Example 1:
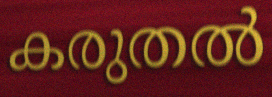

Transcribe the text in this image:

കരുതൽ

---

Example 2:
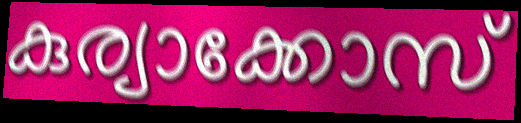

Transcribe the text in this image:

കുര്യാക്കോസ്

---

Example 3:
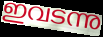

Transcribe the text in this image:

ഇവടന്നു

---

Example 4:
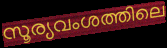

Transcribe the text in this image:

സൂര്യവംശത്തിലെ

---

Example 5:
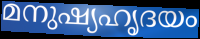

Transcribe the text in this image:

മനുഷ്യഹൃദയം